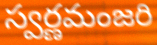
స్వర్ణమంజరి